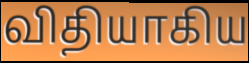
விதியாகிய